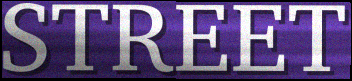
STREET